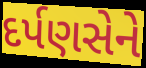
દર્પણસેને